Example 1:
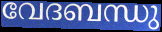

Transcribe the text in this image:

വേദബന്ധു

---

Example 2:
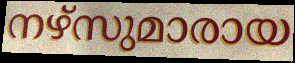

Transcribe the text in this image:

നഴ്സുമാരായ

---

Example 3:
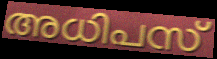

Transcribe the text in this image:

അധിപസ്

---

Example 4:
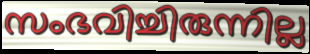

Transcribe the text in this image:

സംഭവിച്ചിരുന്നില്ല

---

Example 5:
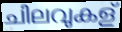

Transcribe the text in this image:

ചിലവുകള്